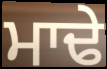
ਮਾਢੇ